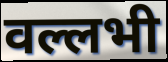
वल्लभी